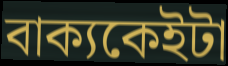
বাক্যকেইটা